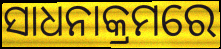
ସାଧନାକ୍ରମରେ